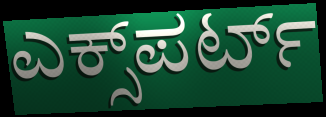
ಎಕ್ಸ್‌ಪರ್ಟ್